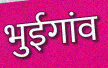
भुईगांव